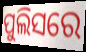
ପୁଲିସରେ